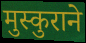
मुस्कुराने